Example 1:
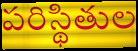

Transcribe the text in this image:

పరిస్థితుల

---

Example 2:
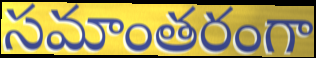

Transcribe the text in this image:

సమాంతరంగా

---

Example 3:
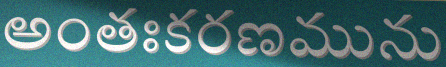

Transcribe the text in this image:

అంతఃకరణమును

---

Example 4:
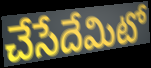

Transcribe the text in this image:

చేసేదేమిటో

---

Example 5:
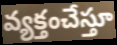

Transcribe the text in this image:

వ్యక్తంచేస్తూ